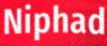
Niphad